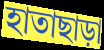
হাতাছাড়া